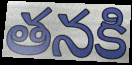
తనకి